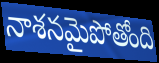
నాశనమైపోతోంది